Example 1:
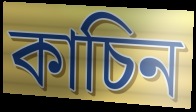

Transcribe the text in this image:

কাচিন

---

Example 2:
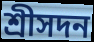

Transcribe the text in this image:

শ্রীসদন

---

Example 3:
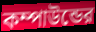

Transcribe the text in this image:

কম্পাউন্ডের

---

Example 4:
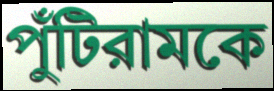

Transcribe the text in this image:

পুঁটিরামকে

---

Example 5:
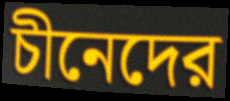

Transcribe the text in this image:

চীনেদের